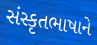
સંસ્કૃતભાષાને